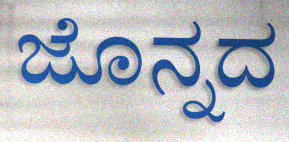
ಜೊನ್ನದ